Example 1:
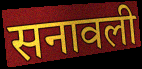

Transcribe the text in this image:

सनावली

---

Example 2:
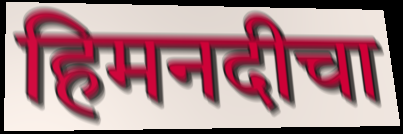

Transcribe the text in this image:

हिमनदीचा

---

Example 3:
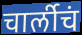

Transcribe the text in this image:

चार्लीचं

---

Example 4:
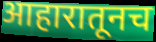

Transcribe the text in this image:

आहारातूनच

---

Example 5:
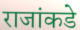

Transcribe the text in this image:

राजांकडे